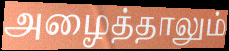
அழைத்தாலும்